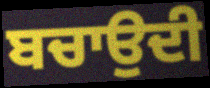
ਬਚਾਉਦੀ